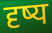
दृष्य